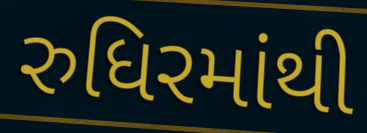
રુધિરમાંથી